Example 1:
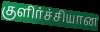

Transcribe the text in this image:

குளிர்ச்சியான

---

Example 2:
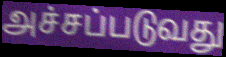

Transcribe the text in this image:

அச்சப்படுவது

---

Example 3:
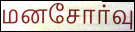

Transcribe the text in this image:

மனசோர்வு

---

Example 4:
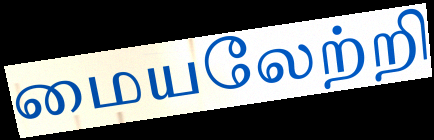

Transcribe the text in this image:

மையலேற்றி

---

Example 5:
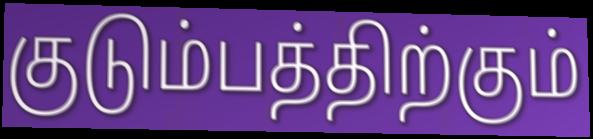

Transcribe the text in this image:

குடும்பத்திற்கும்